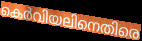
കെർവിയലിനെതിരെ